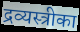
द्रव्यस्त्रीका